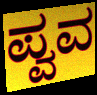
ಪ್ವವ